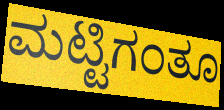
ಮಟ್ಟಿಗಂತೂ